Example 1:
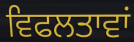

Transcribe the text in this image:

ਵਿਫਲਤਾਵਾਂ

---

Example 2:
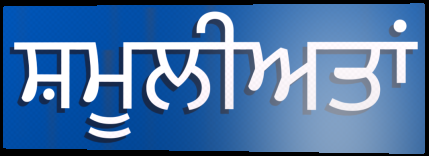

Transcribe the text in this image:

ਸ਼ਮੂਲੀਅਤਾਂ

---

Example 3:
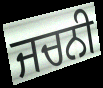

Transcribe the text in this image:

ਜਚਨੀ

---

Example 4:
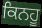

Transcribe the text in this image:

ਕਿਨਹੂ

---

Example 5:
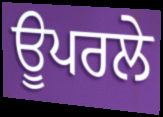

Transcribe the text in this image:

ਊਪਰਲੇ